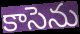
కాసెను